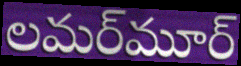
లమర్‌మూర్